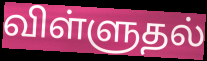
விள்ளுதல்